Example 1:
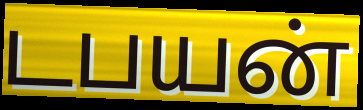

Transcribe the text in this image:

டபயன்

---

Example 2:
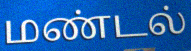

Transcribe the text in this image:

மண்டல்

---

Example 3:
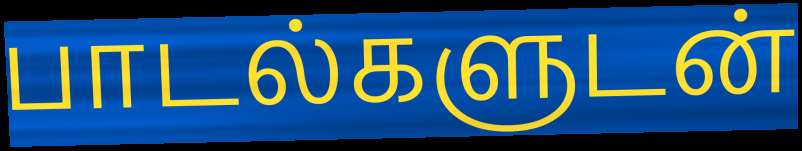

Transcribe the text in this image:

பாடல்களுடன்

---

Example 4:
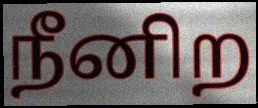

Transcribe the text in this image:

நீனிற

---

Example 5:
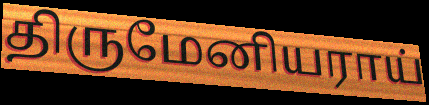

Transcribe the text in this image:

திருமேனியராய்